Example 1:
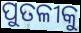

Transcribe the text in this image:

ପୁତଳୀକୁ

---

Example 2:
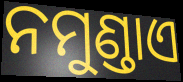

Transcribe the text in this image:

ନମୁଣ୍ଡାଏ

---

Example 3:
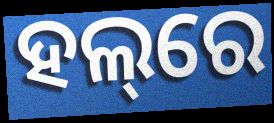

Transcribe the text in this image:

ହଲ୍‌ରେ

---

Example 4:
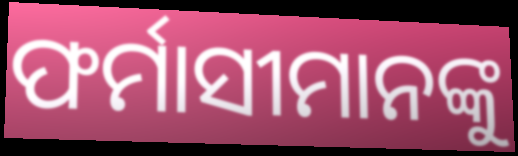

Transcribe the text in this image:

ଫର୍ମାସୀମାନଙ୍କୁ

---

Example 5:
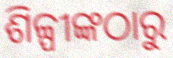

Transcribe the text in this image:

ଶିଳ୍ପୀଙ୍କଠାରୁ